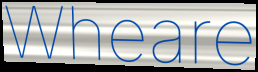
Wheare